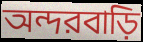
অন্দরবাড়ি